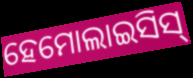
ହେମୋଲାଇସିସ୍